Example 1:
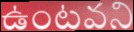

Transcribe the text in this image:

ఉంటవని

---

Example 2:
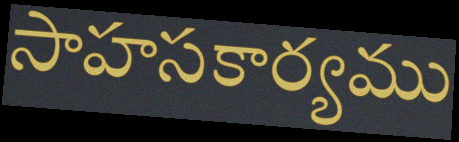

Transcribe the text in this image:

సాహసకార్యము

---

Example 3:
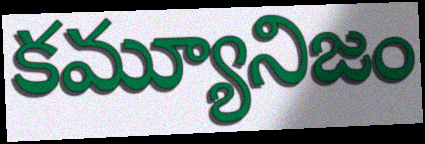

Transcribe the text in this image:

కమ్యూనిజం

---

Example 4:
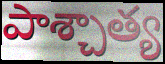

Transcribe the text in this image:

పాశ్చాత్య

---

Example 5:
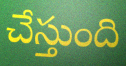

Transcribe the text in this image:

చేస్తుంది